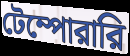
টেম্পোরারি